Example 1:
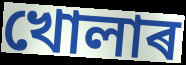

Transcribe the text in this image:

খোলাৰ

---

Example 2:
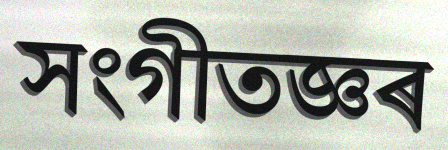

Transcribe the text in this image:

সংগীতজ্ঞৰ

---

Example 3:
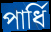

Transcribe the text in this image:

পাৰ্ধি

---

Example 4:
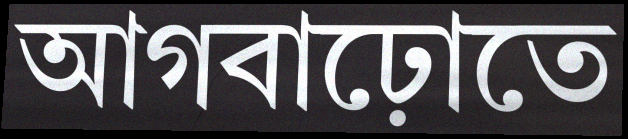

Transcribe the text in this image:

আগবাঢ়োতে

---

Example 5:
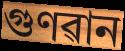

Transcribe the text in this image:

গুণৱান